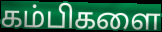
கம்பிகளை